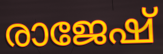
രാജേഷ്